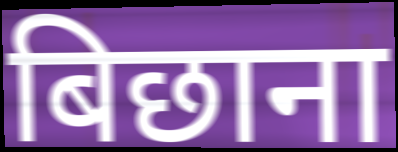
बिछाना